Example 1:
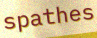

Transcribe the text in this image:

spathes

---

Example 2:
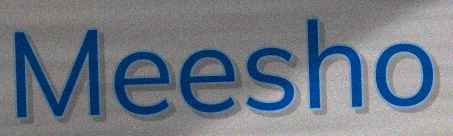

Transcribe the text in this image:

Meesho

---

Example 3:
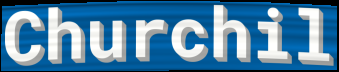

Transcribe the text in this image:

Churchil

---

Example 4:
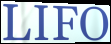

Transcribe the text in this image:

LIFO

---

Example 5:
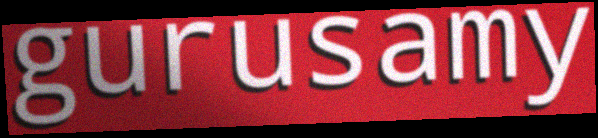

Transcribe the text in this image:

gurusamy